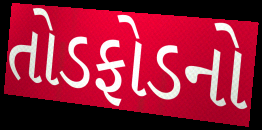
તોડફોડનો